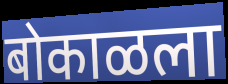
बोकाळला